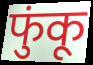
फुंकू